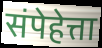
संपेहेत्ता